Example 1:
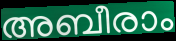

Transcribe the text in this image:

അബീരാം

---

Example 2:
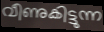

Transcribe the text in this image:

വീണുകിട്ടുന്ന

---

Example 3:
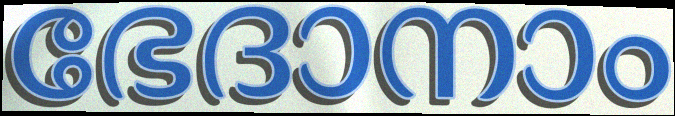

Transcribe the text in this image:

ഭേദാനാം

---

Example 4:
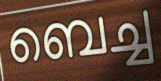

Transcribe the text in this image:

ബെച്ച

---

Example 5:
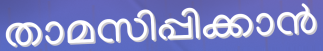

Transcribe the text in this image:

താമസിപ്പിക്കാൻ